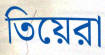
তিয়েরা